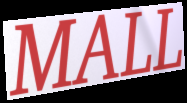
MALL